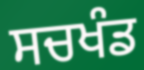
ਸਚਖੰਡ